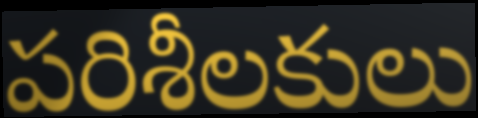
పరిశీలకులు